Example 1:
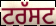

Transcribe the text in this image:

ਟਰੱਸਟ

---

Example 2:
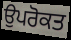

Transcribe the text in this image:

ਉਪਰੋਕਤ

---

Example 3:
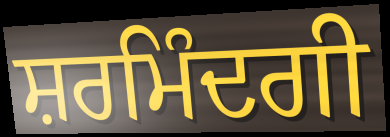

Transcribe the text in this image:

ਸ਼ਰਮਿੰਦਗੀ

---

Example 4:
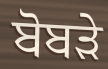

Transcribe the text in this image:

ਬੋਬੜੇ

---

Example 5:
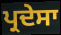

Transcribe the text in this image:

ਪ੍ਰਦੇਸਾ